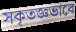
সকৃতজ্ঞভাবে